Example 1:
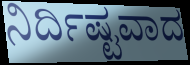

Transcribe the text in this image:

ನಿರ್ದಿಷ್ಟವಾದ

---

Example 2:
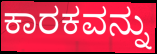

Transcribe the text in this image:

ಕಾರಕವನ್ನು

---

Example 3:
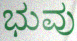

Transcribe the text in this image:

ಭುವು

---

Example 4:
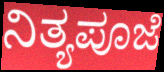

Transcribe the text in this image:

ನಿತ್ಯಪೂಜೆ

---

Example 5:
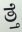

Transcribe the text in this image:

ತ್ತೆ